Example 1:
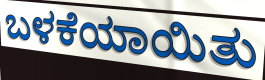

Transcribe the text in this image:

ಬಳಕೆಯಾಯಿತು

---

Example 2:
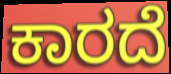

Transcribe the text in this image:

ಕಾರದೆ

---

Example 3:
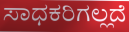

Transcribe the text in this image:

ಸಾಧಕರಿಗಲ್ಲದೆ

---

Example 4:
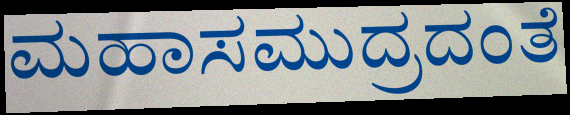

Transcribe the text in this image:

ಮಹಾಸಮುದ್ರದಂತೆ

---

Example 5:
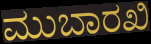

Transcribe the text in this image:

ಮುಬಾರಖಿ